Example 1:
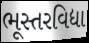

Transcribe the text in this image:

ભૂસ્તરવિદ્યા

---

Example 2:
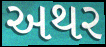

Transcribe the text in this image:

અથર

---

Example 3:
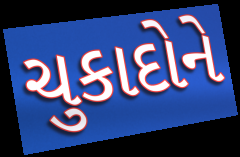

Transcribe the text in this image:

ચુકાદોને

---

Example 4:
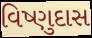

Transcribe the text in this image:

વિષ્ણુદાસ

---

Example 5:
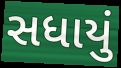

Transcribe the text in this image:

સધાયું